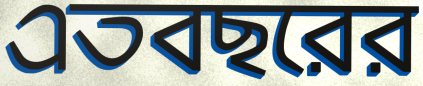
এতবছরের